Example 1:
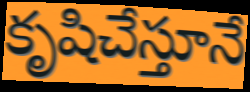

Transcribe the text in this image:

కృషిచేస్తూనే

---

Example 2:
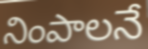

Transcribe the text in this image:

నింపాలనే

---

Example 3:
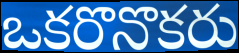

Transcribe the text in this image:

ఒకరొనొకరు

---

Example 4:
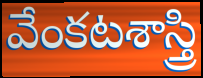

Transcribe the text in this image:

వేంకటశాస్త్రి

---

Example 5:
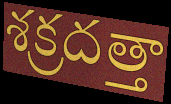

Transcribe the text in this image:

శక్రదత్తా